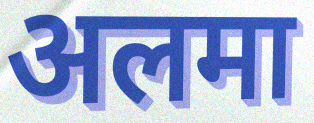
अलमा